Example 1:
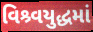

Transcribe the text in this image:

વિશ્ર્વયુદ્ધમાં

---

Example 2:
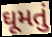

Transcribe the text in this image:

ઘૂમતું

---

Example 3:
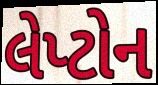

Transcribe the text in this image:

લેપ્ટોન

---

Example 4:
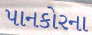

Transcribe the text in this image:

પાનકોરના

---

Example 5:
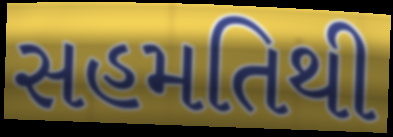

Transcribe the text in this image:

સહમતિથી